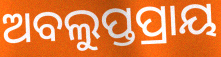
ଅବଲୁପ୍ତପ୍ରାୟ